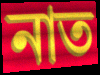
নাত